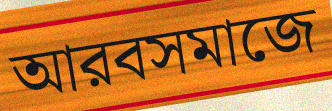
আরবসমাজে